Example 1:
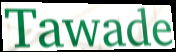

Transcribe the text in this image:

Tawade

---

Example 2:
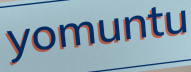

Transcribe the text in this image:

yomuntu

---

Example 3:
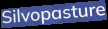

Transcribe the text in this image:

Silvopasture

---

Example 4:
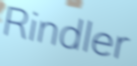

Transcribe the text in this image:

Rindler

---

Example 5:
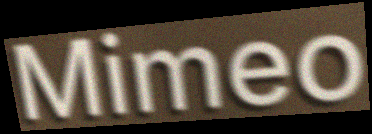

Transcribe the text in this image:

Mimeo